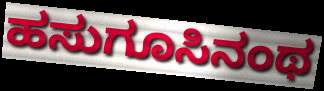
ಹಸುಗೂಸಿನಂಥ